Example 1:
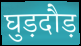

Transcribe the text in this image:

घुड़दौड़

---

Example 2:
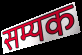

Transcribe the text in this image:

सम्‍यक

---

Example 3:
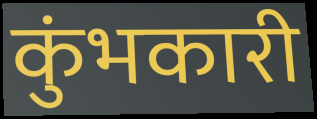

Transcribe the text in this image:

कुंभकारी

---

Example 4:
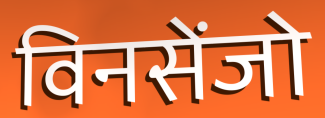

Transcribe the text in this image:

विनसेंजो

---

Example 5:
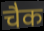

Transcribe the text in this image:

चैक